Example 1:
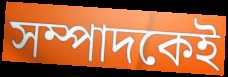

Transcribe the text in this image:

সম্পাদকেই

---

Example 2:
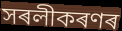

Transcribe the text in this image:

সৰলীকৰণৰ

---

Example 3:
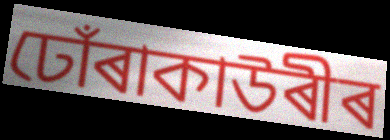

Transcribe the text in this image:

ঢোঁৰাকাউৰীৰ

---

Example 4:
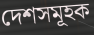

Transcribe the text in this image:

দেশসমূহক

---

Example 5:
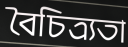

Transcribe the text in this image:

বৈচিত্ৰ্যতা